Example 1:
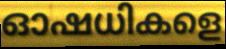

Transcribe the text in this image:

ഓഷധികളെ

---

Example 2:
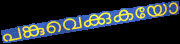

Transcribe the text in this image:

പങ്കുവെക്കുകയോ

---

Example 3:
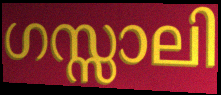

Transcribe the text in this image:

ഗസ്സാലി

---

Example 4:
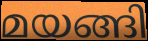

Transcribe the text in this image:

മയങ്ങി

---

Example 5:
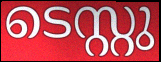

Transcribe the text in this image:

ടെസ്റ്റു